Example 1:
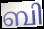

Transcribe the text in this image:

ബി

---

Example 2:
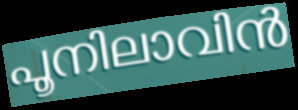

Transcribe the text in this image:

പൂനിലാവിൻ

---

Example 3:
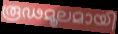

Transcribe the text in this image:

രൂഢമൂലമായി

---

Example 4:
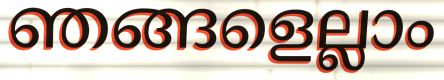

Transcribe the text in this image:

ഞങ്ങളെല്ലാം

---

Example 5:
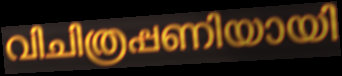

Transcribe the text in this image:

വിചിത്രപ്പണിയായി